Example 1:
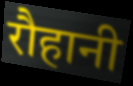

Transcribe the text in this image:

रौहानी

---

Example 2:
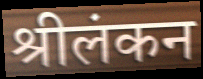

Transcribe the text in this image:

श्रीलंकन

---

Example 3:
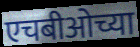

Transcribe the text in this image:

एचबीओच्या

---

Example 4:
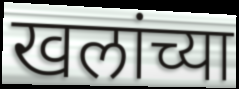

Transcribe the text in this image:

खलांच्या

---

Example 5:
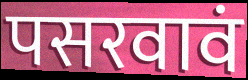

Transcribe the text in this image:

पसरवावं